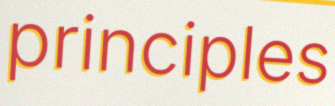
principles